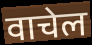
वाचेल